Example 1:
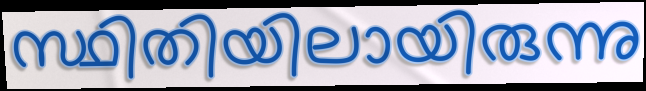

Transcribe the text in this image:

സ്ഥിതിയിലായിരുന്നു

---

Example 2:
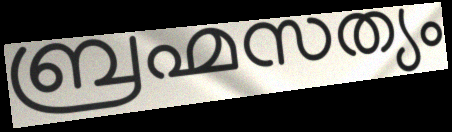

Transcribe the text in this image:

ബ്രഹ്മസത്യം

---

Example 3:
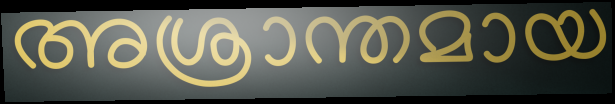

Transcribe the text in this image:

അശ്രാന്തമായ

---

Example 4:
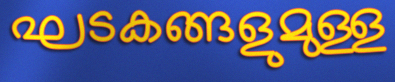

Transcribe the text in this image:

ഘടകങ്ങളുമുള്ള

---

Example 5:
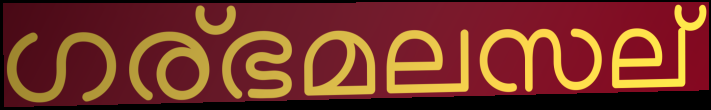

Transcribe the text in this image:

ഗര്ഭമലസല്